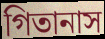
গিতানাস